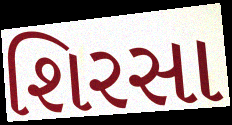
શિરસા